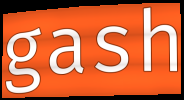
gash